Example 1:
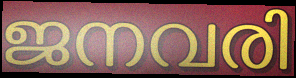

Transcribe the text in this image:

ജനവരി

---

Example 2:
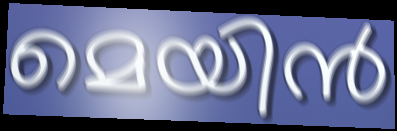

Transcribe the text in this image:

മെയിൻ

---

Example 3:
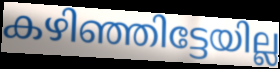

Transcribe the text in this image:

കഴിഞ്ഞിട്ടേയില്ല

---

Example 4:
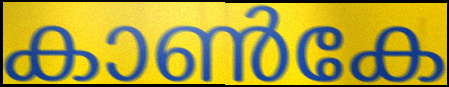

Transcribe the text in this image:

കാൺകേ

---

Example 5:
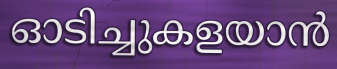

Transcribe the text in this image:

ഓടിച്ചുകളയാൻ